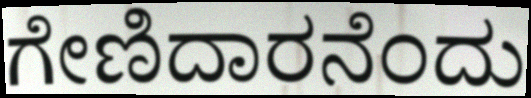
ಗೇಣಿದಾರನೆಂದು